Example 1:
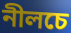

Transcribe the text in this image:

নীলচে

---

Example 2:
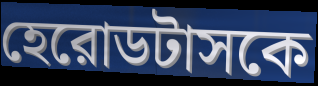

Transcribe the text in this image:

হেরোডটাসকে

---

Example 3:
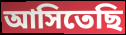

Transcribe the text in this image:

আসিতেছি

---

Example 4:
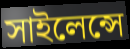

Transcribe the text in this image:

সাইলেন্সে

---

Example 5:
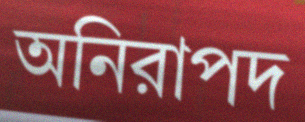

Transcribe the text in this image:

অনিরাপদ